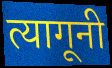
त्यागूनी